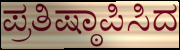
ಪ್ರತಿಷ್ಠಾಪಿಸಿದ